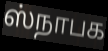
ஸ்நாபக